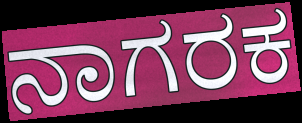
ನಾಗರಕ